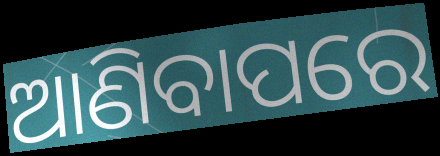
ଆଣିବାପରେ